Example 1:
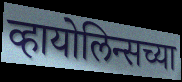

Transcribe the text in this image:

व्हायोलिन्सच्या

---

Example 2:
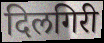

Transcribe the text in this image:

दिलगिरी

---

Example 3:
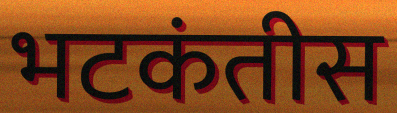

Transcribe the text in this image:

भटकंतीस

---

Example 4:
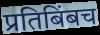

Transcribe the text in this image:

प्रतिबिंबच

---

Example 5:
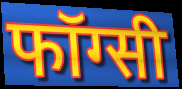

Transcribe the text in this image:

फॉग्सी